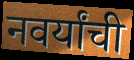
नवर्यांची